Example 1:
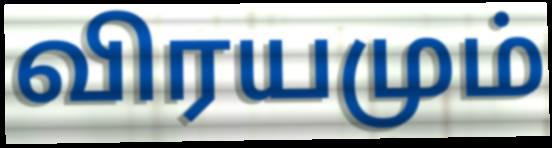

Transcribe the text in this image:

விரயமும்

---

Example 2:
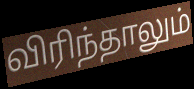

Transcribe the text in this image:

விரிந்தாலும்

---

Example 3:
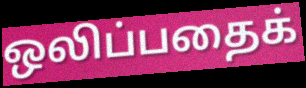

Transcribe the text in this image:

ஒலிப்பதைக்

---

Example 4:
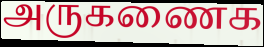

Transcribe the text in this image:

அருகணைக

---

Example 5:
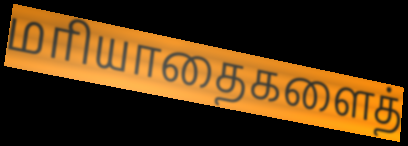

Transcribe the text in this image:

மரியாதைகளைத்